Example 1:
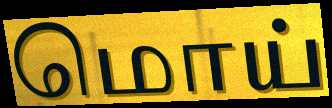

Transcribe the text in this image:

மொய்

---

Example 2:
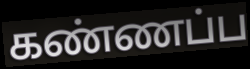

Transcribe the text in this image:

கண்ணப்ப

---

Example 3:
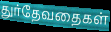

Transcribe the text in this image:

துர்தேவதைகள்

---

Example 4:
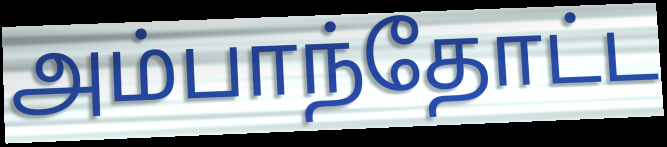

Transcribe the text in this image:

அம்பாந்தோட்ட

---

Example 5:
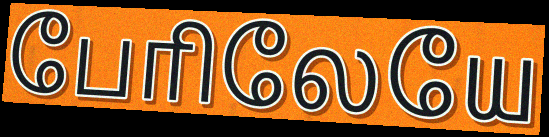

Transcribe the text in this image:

பேரிலேயே